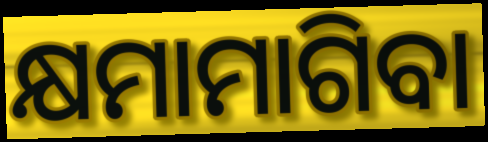
କ୍ଷମାମାଗିବା